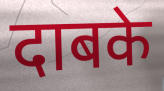
दाबके